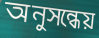
অনুসন্ধেয়